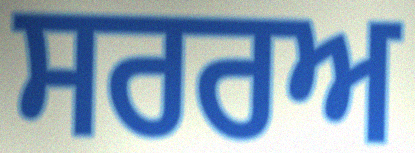
ਸਰਰਅ